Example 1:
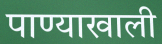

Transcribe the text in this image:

पाण्‍याखाली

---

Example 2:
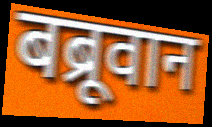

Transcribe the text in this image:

बब्रूवान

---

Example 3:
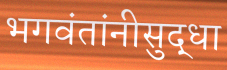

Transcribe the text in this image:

भगवंतांनीसुद्धा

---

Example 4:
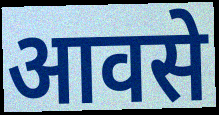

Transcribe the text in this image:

आवसे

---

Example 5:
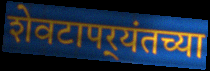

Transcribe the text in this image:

शेवटापर्यंतच्या